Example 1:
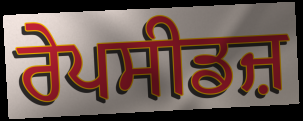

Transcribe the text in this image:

ਰੇਪਸੀਡਜ਼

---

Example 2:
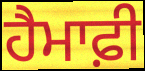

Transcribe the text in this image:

ਹੈਮਾਫ਼ੀ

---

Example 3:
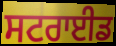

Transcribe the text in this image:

ਸਟਰਾਈਡ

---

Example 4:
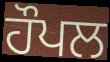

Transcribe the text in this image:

ਹੌਪਲ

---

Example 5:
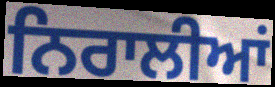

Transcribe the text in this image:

ਨਿਰਾਲੀਆਂ